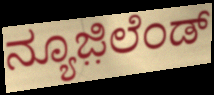
ನ್ಯೂಜ಼ಿಲೆಂಡ್